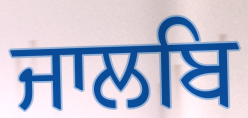
ਜਾਲਬਿ